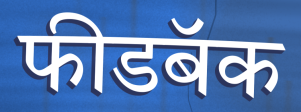
फीडबॅक